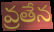
వ్రతేన